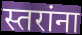
स्तरांना